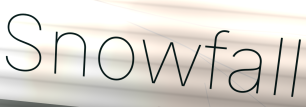
Snowfall